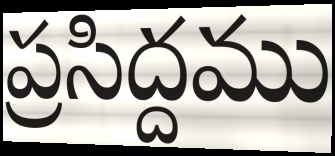
ప్రసిద్దము